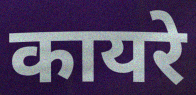
कायरे